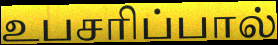
உபசரிப்பால்